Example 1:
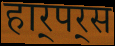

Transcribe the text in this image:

हार्पर्स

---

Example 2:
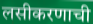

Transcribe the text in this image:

लसीकरणाची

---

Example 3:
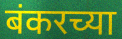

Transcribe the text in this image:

बंकरच्या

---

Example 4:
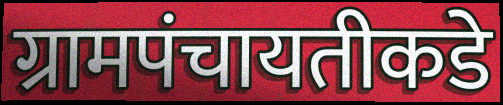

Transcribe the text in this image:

ग्रामपंचायतीकडे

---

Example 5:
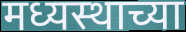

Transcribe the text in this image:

मध्यस्थाच्या